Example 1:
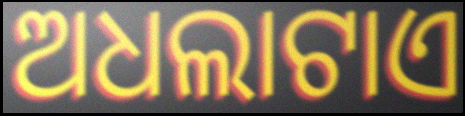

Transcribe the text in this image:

ଅଧଲାଟାଏ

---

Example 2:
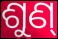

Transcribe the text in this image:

ଶୁଣ୍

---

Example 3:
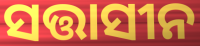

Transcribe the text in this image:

ସତ୍ତାସୀନ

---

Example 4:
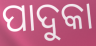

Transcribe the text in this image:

ପାଦୁକା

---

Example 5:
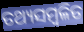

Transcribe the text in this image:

ତଥ୍ୟସମ୍ବଳିତ